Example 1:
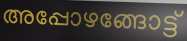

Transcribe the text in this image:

അപ്പോഴങ്ങോട്ട്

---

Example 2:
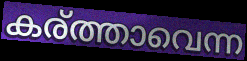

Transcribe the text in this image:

കര്ത്താവെന്ന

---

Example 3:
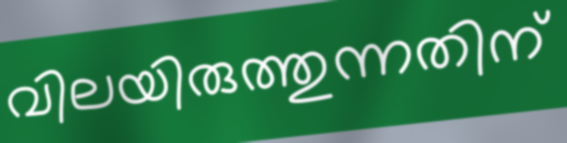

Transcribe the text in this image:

വിലയിരുത്തുന്നതിന്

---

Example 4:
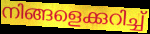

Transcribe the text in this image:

നിങ്ങളെക്കുറിച്ച്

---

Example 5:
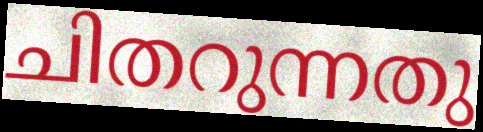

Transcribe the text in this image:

ചിതറുന്നതു